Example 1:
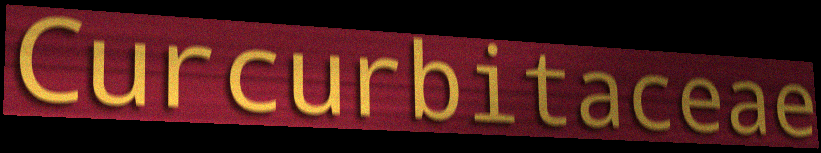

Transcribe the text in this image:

Curcurbitaceae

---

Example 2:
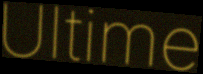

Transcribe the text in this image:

Ultime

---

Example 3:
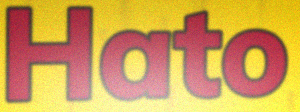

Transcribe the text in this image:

Hato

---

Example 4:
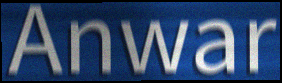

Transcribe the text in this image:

Anwar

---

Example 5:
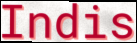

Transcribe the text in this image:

Indis